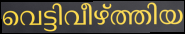
വെട്ടിവീഴ്ത്തിയ